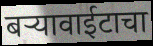
बऱ्यावाईटाचा